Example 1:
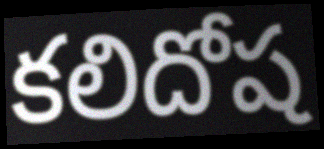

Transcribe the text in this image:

కలిదోష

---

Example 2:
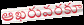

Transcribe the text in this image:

ఆఖరువరకూ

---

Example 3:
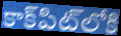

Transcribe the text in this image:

కాక్‌పిట్‌లోకి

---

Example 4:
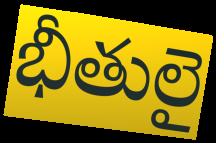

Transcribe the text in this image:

భీతులై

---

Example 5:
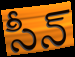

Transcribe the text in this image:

సీన్